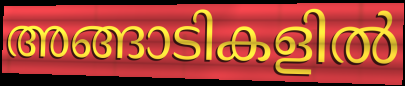
അങ്ങാടികളിൽ